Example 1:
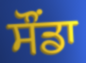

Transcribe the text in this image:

ਸੌਂਡਾ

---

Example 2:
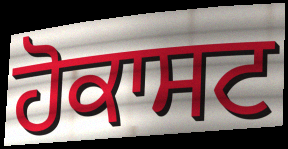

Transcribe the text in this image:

ਹੋਕਾਸਟ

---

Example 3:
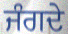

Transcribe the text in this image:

ਜੰਗਦੇ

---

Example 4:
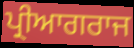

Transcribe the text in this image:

ਪ੍ਰੀਆਗਰਾਜ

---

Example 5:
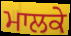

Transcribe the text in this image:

ਮਾਲਕੇ